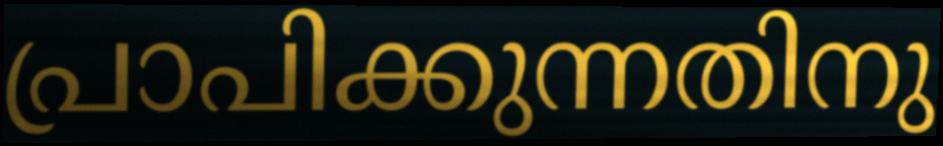
പ്രാപിക്കുന്നതിനു